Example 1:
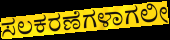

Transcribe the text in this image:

ಸಲಕರಣೆಗಳಾಗಲೀ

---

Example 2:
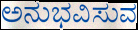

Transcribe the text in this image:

ಅನುಭವಿಸುವ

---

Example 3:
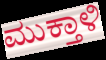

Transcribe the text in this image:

ಮುಕ್ತಾಳಿ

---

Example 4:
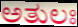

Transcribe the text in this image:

ಅತುಲಃ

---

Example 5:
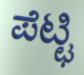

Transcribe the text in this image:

ಪೆಟ್ಟಿ